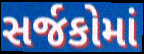
સર્જકોમાં